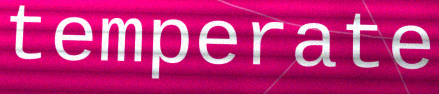
temperate